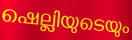
ഷെല്ലിയുടെയും